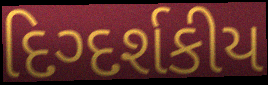
દિગ્દર્શકીય